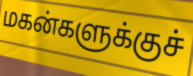
மகன்களுக்குச்